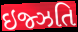
ઇજ્ઝતિ